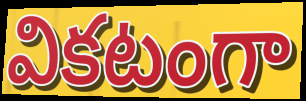
వికటంగా